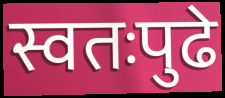
स्वतःपुढे